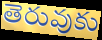
తెరువుకు